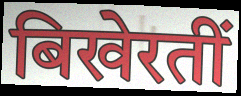
बिखेरतीं